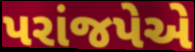
પરાંજપેએ